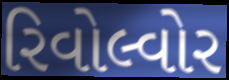
રિવોલ્વોર